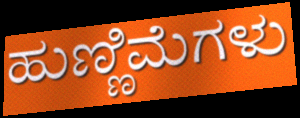
ಹುಣ್ಣಿಮೆಗಳು